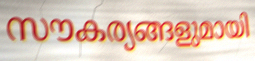
സൗകര്യങ്ങളുമായി